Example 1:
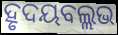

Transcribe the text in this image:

ହୃଦୟବଲ୍ଲଭ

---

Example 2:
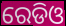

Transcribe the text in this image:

ରେଡିଓ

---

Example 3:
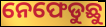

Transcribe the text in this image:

ନେଫେଡୁଛୁ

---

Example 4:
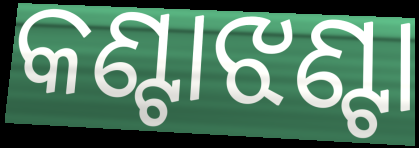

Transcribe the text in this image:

କଣ୍ଟାଝଣ୍ଟା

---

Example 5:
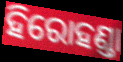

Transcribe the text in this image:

ହିରୋହଣ୍ଡା